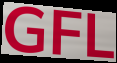
GFL